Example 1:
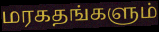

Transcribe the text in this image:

மரகதங்களும்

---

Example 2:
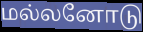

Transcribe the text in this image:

மல்லனோடு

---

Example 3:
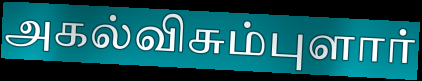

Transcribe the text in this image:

அகல்விசும்புளார்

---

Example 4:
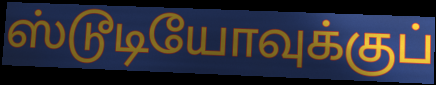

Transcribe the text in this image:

ஸ்டூடியோவுக்குப்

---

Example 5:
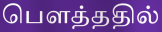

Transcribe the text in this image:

பௌத்ததில்